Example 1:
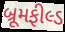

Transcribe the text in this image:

બ્રૂમફીલ્ડ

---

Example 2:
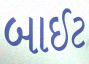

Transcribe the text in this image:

બાઈટ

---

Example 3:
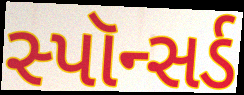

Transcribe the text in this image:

સ્પૉન્સર્ડ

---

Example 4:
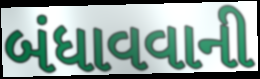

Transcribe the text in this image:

બંધાવવાની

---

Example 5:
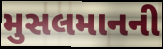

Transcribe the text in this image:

મુસલમાનની